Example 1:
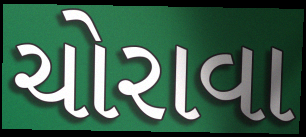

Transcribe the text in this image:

ચોરાવા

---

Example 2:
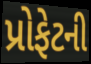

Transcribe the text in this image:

પ્રોફેટની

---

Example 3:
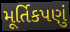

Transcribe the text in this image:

મૂર્તિકપણું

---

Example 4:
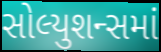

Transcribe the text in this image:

સોલ્યુશન્સમાં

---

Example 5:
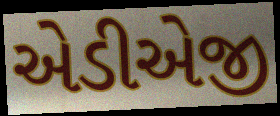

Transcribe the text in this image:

એડીએજી